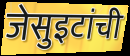
जेसुइटांची